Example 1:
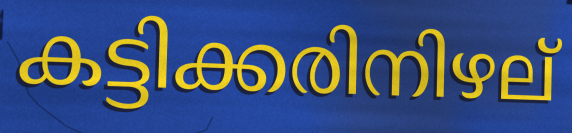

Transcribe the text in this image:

കട്ടിക്കരിനിഴല്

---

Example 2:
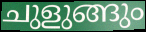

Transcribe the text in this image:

ചുളുങ്ങും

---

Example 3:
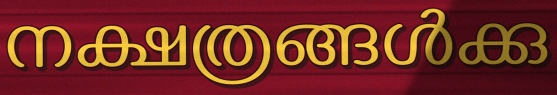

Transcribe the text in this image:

നക്ഷത്രങ്ങൾക്കു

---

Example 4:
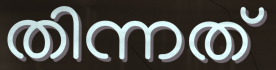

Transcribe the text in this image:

തിന്നത്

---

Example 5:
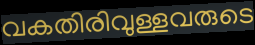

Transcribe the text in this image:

വകതിരിവുള്ളവരുടെ